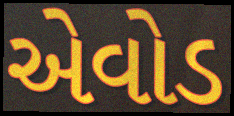
એવોડ